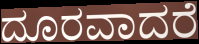
ದೂರವಾದರೆ